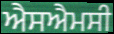
ਐਸਐਮਸੀ